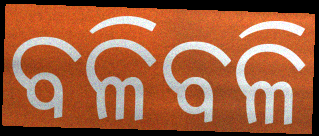
ବଳିବଳି